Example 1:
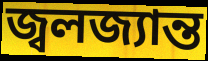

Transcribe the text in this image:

জ্বলজ্যান্ত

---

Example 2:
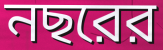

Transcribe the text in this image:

নছরের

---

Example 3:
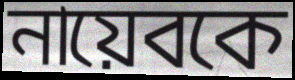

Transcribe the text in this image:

নায়েবকে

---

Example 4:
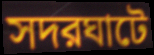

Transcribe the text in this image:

সদরঘাটে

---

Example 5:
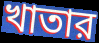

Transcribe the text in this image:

খাতার